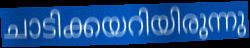
ചാടിക്കയറിയിരുന്നു